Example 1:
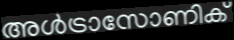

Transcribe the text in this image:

അൾട്രാസോണിക്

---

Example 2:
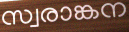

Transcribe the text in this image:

സ്വരാങ്കന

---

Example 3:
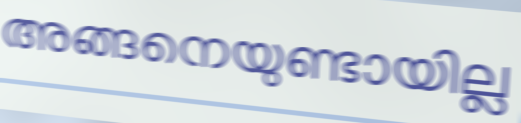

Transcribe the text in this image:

അങ്ങനെയുണ്ടായില്ല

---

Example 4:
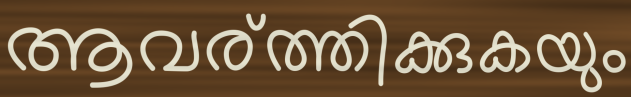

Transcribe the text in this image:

ആവര്ത്തിക്കുകയും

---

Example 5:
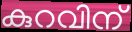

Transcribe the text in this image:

കുറവിന്